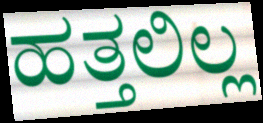
ಹತ್ತಲಿಲ್ಲ